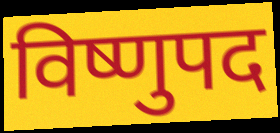
विष्णुपद